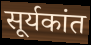
सूर्यकांत